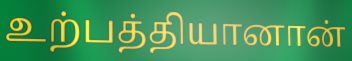
உற்பத்தியானான்